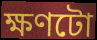
ক্ষণটো